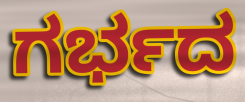
ಗರ್ಭದ